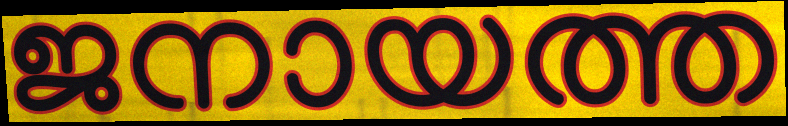
ജനായത്ത